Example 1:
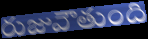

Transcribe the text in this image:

రుజువౌతుంది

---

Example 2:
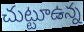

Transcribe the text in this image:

చుట్టూఉన్న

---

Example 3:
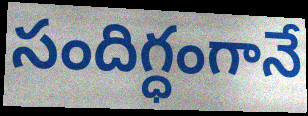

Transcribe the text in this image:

సందిగ్ధంగానే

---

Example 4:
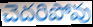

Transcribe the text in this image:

చెదరిపోవు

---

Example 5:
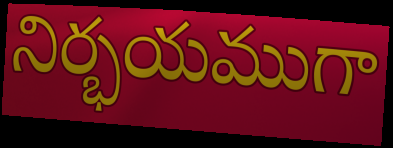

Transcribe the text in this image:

నిర్భయముగా